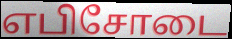
எபிசோடை